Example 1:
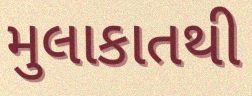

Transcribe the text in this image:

મુલાકાતથી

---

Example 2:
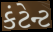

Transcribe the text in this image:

કંટેન્ટ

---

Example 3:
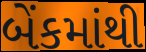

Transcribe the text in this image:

બેંકમાંથી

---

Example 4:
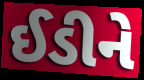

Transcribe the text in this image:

ઈડીને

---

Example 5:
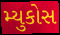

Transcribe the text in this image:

મ્યુકોસ